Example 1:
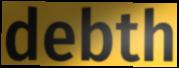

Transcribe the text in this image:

debth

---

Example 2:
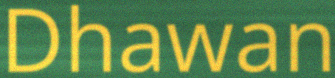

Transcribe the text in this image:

Dhawan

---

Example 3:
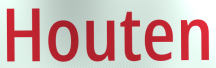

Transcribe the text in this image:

Houten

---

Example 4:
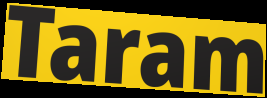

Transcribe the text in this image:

Taram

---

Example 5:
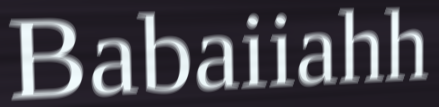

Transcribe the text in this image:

Babaiiahh